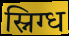
स्निग्ध